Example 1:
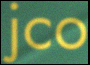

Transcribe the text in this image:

jco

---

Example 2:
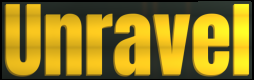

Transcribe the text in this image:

Unravel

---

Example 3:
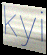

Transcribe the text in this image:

kyi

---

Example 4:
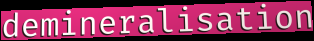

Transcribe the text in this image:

demineralisation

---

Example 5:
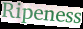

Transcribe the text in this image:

Ripeness